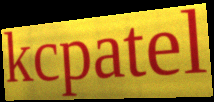
kcpatel